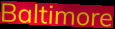
Baltimore